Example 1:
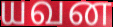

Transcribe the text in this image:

யவன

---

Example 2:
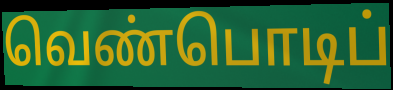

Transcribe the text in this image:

வெண்பொடிப்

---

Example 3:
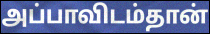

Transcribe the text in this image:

அப்பாவிடம்தான்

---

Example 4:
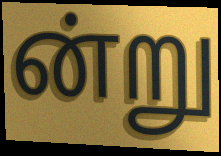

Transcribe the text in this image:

ன்று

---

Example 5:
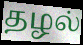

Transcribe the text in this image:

தழல்